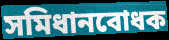
সমিধানবোধক